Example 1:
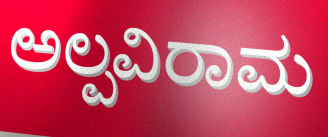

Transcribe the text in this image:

ಅಲ್ಪವಿರಾಮ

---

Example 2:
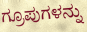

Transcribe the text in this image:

ಗ್ರೂಪುಗಳನ್ನು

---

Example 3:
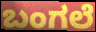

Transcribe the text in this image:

ಬಂಗಲೆ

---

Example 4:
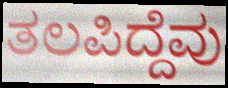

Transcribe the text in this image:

ತಲಪಿದ್ದೆವು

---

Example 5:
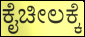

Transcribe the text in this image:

ಕೈಚೀಲಕ್ಕೆ